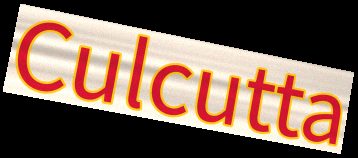
Culcutta